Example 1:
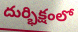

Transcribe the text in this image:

దుర్భిక్షంలో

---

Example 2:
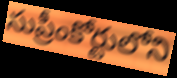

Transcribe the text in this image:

సుప్రీంకోర్టులోని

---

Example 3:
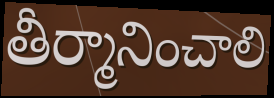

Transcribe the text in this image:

తీర్మానించాలి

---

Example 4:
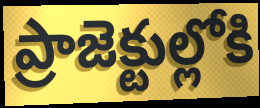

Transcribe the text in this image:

ప్రాజెక్టుల్లోకి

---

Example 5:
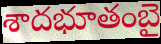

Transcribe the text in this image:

శాదభూతంబై